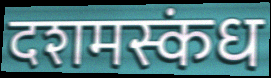
दशमस्कंध